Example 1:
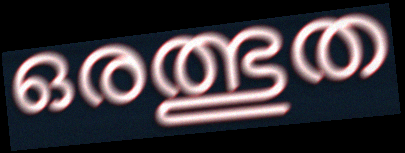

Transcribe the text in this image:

ഒരത്ഭുത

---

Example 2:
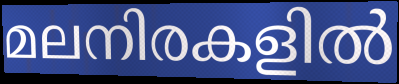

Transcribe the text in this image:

മലനിരകളിൽ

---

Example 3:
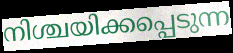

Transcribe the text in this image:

നിശ്ചയിക്കപ്പെടുന്ന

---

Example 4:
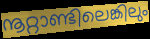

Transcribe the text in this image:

നൂറ്റാണ്ടിലെങ്കിലും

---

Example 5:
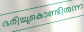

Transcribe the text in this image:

ഭരിച്ചുകൊണ്ടിരുന്ന